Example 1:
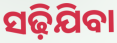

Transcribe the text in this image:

ସଢ଼ିଯିବା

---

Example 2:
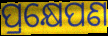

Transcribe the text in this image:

ପ୍ରକ୍ଷେପଣ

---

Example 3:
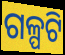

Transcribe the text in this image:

ଗଳ୍ପଟି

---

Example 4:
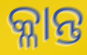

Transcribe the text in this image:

କ୍ଳାନ୍ତ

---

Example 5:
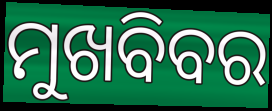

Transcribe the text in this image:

ମୁଖବିବର